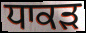
ਧਾਕੜ